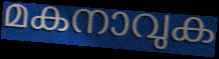
മകനാവുക